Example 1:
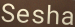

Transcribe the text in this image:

Sesha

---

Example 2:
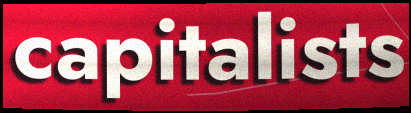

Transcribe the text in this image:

capitalists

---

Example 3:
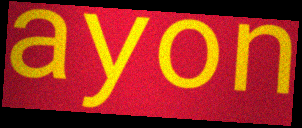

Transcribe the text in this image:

ayon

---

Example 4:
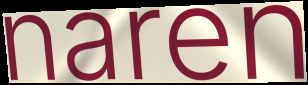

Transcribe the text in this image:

naren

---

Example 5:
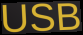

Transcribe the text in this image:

USB